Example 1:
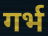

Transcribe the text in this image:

गर्भ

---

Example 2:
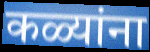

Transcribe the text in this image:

कळ्यांना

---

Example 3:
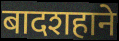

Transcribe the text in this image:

बादशहाने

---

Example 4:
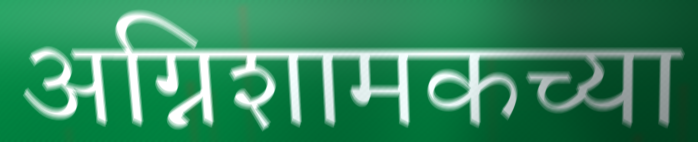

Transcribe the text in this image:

अग्निशामकच्या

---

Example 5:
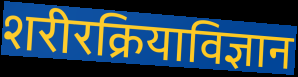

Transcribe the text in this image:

शरीरक्रियाविज्ञान